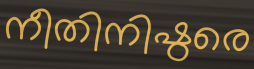
നീതിനിഷ്ഠരെ